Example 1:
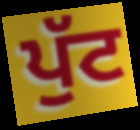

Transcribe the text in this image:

ਪੁੱਟ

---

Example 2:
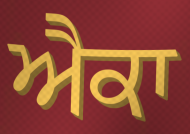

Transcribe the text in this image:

ਐਕਾ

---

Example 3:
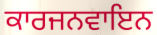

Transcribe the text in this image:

ਕਾਰਜਨਵਾਇਨ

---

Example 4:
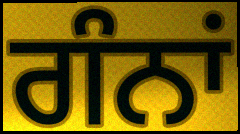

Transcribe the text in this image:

ਗੰਨਾਂ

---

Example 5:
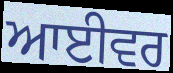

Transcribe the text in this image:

ਆਈਵਰ